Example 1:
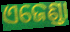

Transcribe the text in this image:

ଏଜେଣ୍ଡା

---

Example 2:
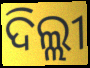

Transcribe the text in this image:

ଦିଲ୍ଲୀ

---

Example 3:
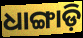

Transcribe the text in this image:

ଧାଙ୍ଗାଡ଼ି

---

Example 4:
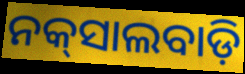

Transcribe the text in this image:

ନକ୍‌ସାଲବାଡ଼ି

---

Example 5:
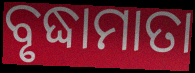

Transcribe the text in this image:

ବୃଦ୍ଧାମାତା